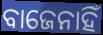
ବାଜେନାହିଁ